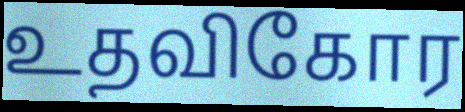
உதவிகோர